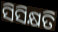
ସିସିକ୍ଷତି